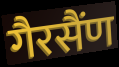
गैरसैंण